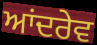
ਆਂਦਰੇਵ